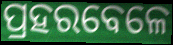
ପ୍ରହରବେଳେ